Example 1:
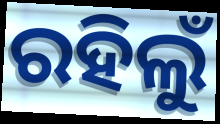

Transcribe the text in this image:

ରହିଲୁଁ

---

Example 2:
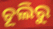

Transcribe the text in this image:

ଚୂଲିରୁ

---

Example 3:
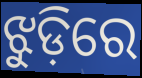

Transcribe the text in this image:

ଝୁଡ଼ିରେ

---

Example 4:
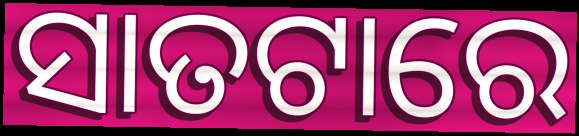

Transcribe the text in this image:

ସାତଟାରେ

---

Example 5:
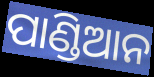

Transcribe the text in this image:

ପାଣ୍ଡିଆନ